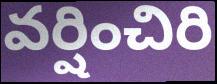
వర్షించిరి